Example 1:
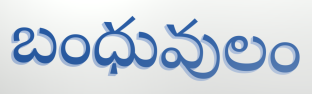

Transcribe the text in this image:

బంధువులం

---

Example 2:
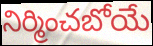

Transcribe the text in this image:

నిర్మించబోయే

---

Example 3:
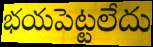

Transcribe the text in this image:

భయపెట్టలేదు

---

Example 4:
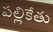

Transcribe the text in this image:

పల్లికేతు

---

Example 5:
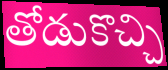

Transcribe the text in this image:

తోడుకొచ్చి